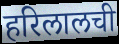
हरिलालची